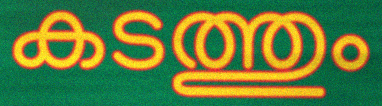
കടത്തും